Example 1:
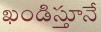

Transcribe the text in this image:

ఖండిస్తూనే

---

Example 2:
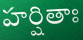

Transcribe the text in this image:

హర్షితాః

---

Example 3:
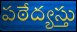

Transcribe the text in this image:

పఠేద్యస్తు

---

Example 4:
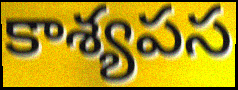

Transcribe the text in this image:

కాశ్యపస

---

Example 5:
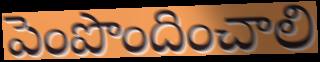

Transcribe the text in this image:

పెంపొందించాలి